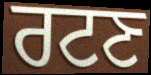
ਰਟਣ